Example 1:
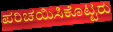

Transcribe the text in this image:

ಪರಿಚಯಿಸಿಕೊಟ್ಟರು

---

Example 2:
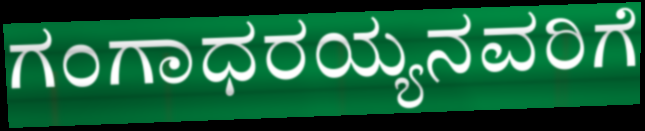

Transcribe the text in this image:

ಗಂಗಾಧರಯ್ಯನವರಿಗೆ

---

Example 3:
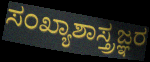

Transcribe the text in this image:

ಸಂಖ್ಯಾಶಾಸ್ತ್ರಜ್ಞರ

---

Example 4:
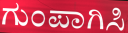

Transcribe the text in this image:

ಗುಂಪಾಗಿಸಿ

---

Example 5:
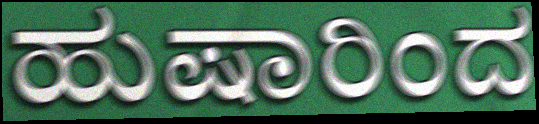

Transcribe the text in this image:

ಹುಷಾರಿಂದ